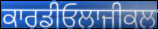
ਕਾਰਡੀਓਲਾਜੀਕਲ